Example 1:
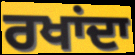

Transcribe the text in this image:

ਰਖਾਂਦਾ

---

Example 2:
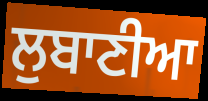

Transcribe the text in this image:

ਲੁਬਾਣੀਆ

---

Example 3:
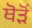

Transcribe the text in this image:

ਥੋੜੋਂ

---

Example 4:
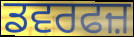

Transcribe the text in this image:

ਡਵਰਫਜ਼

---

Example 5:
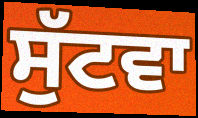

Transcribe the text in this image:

ਸੁੱਟਵਾ